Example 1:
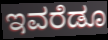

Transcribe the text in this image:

ಇವರೆಡೂ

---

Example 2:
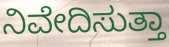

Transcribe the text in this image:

ನಿವೇದಿಸುತ್ತಾ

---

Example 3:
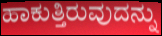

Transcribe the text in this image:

ಹಾಕುತ್ತಿರುವುದನ್ನು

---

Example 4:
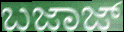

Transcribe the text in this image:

ಬಜಾಜ್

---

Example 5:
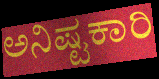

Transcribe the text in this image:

ಅನಿಷ್ಟಕಾರಿ